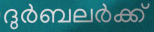
ദുർബലർക്ക്